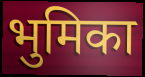
भुमिका